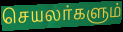
செயலர்களும்